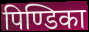
पिण्डिका